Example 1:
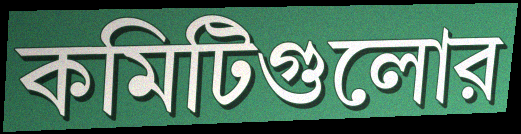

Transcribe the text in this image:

কমিটিগুলোর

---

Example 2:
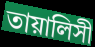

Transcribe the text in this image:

তায়ালিসী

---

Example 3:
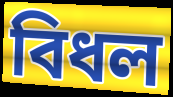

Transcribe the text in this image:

বিধল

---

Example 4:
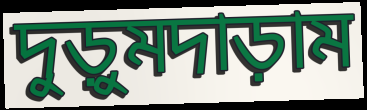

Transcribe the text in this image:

দুড়ুমদাড়াম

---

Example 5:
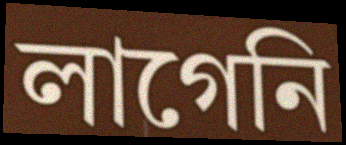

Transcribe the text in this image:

লাগেনি